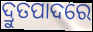
ଦ୍ରୁତପାଦରେ